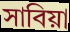
সাবিয়া